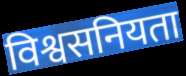
विश्वसनियता